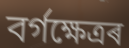
বৰ্গক্ষেত্ৰৰ